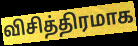
விசித்திரமாக